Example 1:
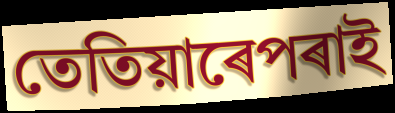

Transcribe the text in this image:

তেতিয়াৰেপৰাই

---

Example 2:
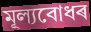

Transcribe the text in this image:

মূল্যবোধৰ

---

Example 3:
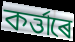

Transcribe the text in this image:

কৰ্ত্তাৰে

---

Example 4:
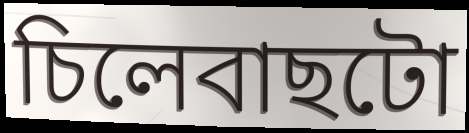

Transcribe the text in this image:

চিলেবাছটো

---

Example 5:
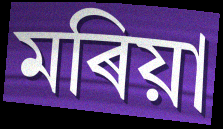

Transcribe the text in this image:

মৰিয়া